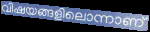
വിഷയങ്ങളിലൊന്നാണ്